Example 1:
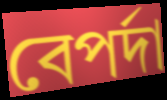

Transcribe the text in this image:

বেপর্দা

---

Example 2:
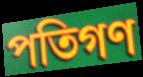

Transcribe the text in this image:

পতিগণ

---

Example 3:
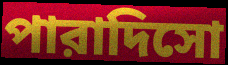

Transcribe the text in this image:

পারাদিসো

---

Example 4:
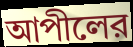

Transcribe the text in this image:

আপীলের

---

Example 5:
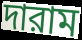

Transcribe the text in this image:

দারাম